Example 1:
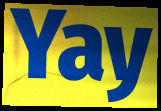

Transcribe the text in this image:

Yay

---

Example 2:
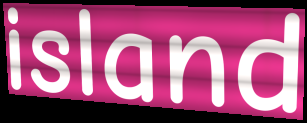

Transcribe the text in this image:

island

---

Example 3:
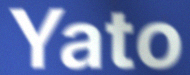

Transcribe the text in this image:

Yato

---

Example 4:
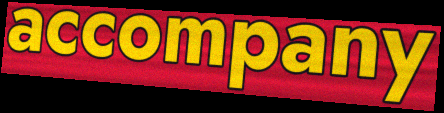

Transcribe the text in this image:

accompany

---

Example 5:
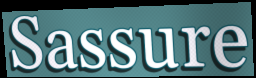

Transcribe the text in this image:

Sassure